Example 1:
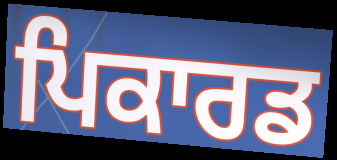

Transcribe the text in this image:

ਪਿਕਾਰਡ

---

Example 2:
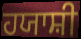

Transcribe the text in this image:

ਹਯਾਸ਼ੀ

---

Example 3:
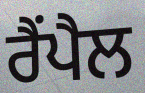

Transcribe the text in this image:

ਰੈਂਪੈਲ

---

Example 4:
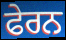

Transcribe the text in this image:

ਫੇਰਨ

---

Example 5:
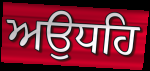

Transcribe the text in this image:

ਅਉਧਹਿ